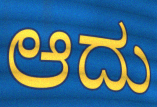
ಆದು